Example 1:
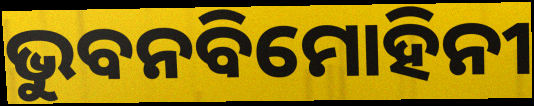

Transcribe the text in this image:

ଭୁବନବିମୋହିନୀ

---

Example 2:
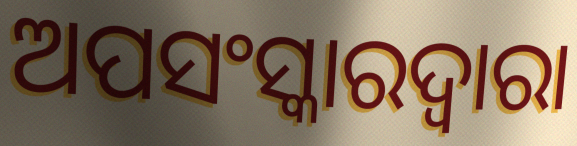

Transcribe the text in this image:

ଅପସଂସ୍କାରଦ୍ୱାରା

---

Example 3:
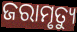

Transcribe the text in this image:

ଜରାମୃତ୍ୟୁ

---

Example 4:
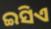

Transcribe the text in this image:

ଇସିଏ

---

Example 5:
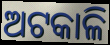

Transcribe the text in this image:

ଅଟକାଳି